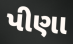
પીણા